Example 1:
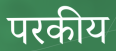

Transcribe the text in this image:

परकीय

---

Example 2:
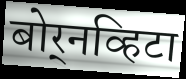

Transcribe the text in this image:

बोर्नव्हिटा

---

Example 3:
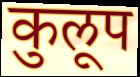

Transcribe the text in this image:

कुलूप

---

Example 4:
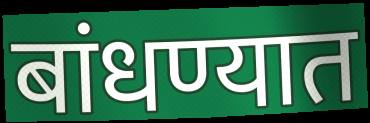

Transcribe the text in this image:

बांधण्‍यात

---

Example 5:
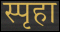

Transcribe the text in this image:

स्पृहा